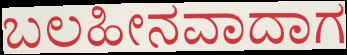
ಬಲಹೀನವಾದಾಗ